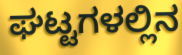
ಘಟ್ಟಗಳಲ್ಲಿನ